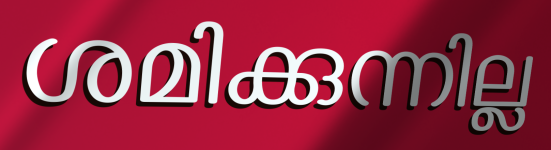
ശമിക്കുന്നില്ല